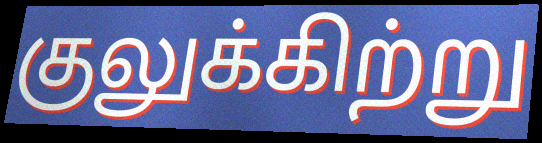
குலுக்கிற்று